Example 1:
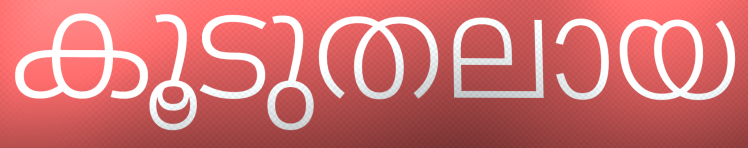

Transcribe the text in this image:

കൂടുതലായ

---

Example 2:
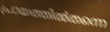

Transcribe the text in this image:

പ്രായത്തിൽതന്നെ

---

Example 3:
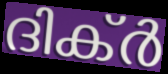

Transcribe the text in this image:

ദിക്ർ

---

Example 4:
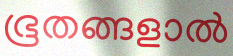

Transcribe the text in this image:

ഭൂതങ്ങളാൽ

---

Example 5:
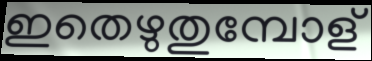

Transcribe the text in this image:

ഇതെഴുതുമ്പോള്